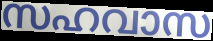
സഹവാസ